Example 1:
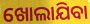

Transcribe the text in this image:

ଖୋଲାଯିବା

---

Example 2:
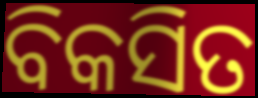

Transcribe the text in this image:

ବିକସିତ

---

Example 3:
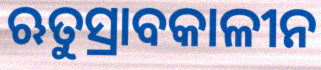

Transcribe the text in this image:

ଋତୁସ୍ରାବକାଳୀନ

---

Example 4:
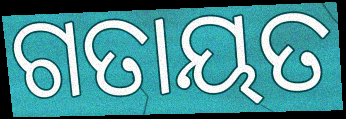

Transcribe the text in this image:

ଗତାୟତ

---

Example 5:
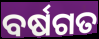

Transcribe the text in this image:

ବର୍ଷଗତ